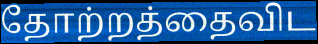
தோற்றத்தைவிட